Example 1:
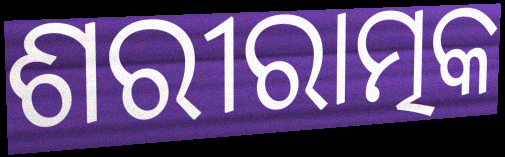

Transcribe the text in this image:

ଶରୀରାତ୍ମକ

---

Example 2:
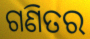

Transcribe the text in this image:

ଗଣିତର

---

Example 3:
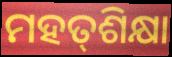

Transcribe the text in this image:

ମହତ୍‌ଶିକ୍ଷା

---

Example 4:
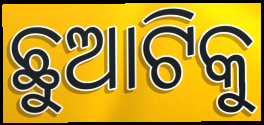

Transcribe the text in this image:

ଛୁଆଟିକୁ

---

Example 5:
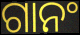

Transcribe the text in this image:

ଗାନଂ